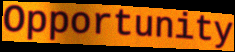
Opportunity